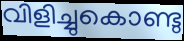
വിളിച്ചുകൊണ്ടു